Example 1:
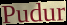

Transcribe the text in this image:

Pudur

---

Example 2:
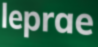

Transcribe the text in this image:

leprae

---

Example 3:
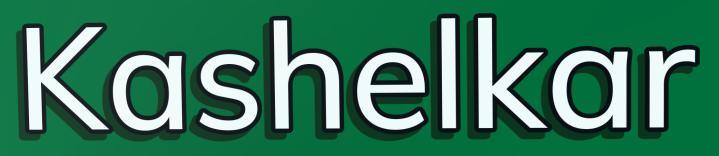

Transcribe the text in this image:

Kashelkar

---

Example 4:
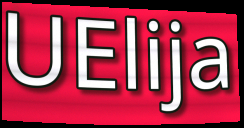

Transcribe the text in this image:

UElija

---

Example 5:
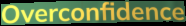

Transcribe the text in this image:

Overconfidence